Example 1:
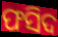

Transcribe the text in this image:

ଫସିଦ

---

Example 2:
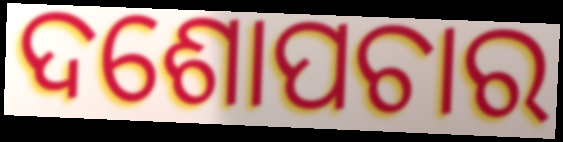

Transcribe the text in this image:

ଦଶୋପଚାର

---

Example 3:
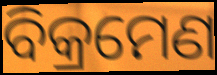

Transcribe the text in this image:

ବିକ୍ରମେଣ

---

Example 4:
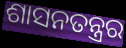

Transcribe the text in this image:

ଶାସନତନ୍ତ୍ରର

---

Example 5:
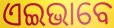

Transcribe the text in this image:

ଏଇଭାବେ